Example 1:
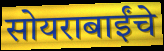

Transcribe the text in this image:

सोयराबाईंचे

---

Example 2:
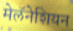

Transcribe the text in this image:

मेलॅनेशियन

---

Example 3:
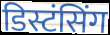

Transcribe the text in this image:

डिस्टंसिंग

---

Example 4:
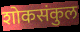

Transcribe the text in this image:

शोकसंकुल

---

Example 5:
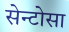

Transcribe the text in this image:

सेन्टोसा